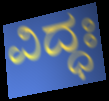
ವಿದ್ಧಃ